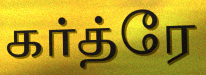
கர்த்ரே